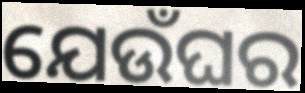
ଯେଉଁଘର